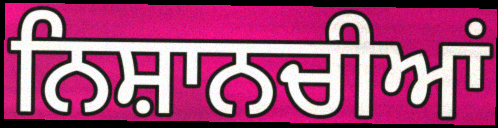
ਨਿਸ਼ਾਨਚੀਆਂ